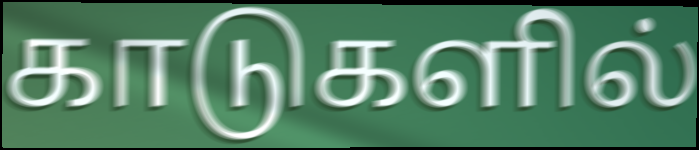
காடுகளில்